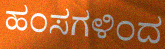
ಹಂಸಗಳಿಂದ